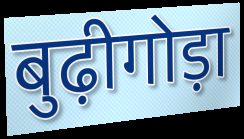
बुढ़ीगोड़ा